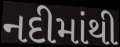
નદીમાંથી